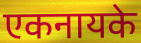
एकनायके